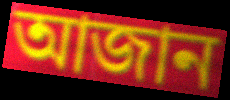
আজান